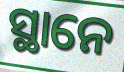
ସ୍ଥାନେ